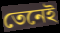
তেনেই